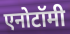
एनोटॉमी